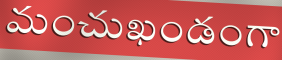
మంచుఖండంగా